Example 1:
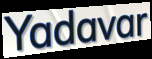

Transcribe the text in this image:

Yadavar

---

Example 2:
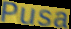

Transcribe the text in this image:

Pusa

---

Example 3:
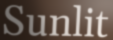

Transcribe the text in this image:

Sunlit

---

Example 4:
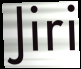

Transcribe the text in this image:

Jiri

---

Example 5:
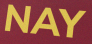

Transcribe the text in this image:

NAY